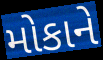
મોકાને